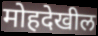
मोहदेखील